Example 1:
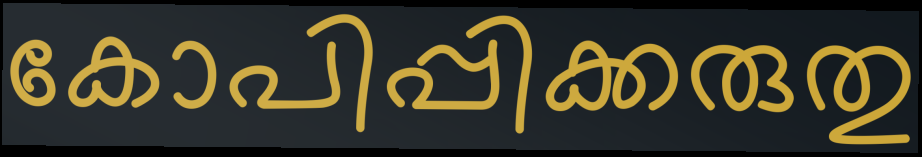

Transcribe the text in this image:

കോപിപ്പിക്കരുതു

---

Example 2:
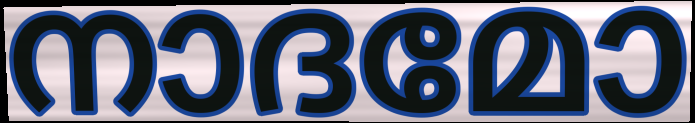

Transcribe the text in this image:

നാദമോ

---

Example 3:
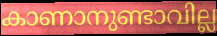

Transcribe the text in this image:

കാണാനുണ്ടാവില്ല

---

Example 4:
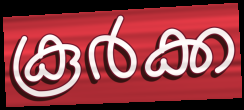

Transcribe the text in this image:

കൂർക്ക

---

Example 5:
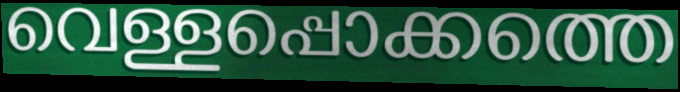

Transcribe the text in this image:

വെള്ളപ്പൊക്കത്തെ